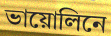
ভায়োলিনে